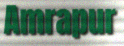
Amrapur